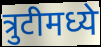
त्रुटीमध्ये